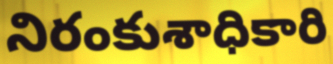
నిరంకుశాధికారి